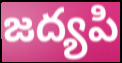
జద్యపి